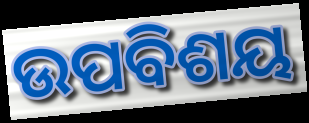
ଉପବିଶୟ